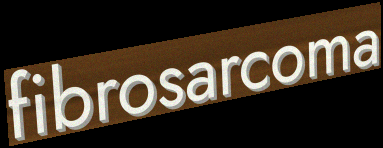
fibrosarcoma